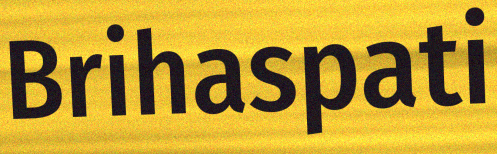
Brihaspati